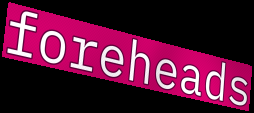
foreheads